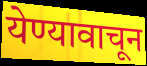
येण्यावाचून